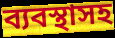
ব্যবস্থাসহ